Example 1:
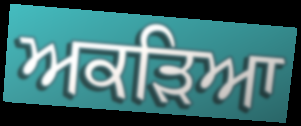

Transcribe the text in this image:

ਅਕੜਿਆ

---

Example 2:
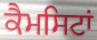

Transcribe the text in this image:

ਕੈਮਸਿਟਾਂ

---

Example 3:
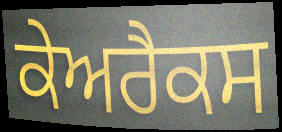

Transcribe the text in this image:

ਕੇਅਰੈਕਸ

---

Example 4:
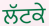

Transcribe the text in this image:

ਲੱਟਕੇ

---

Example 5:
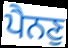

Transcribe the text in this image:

ਪੈਨਣੁ